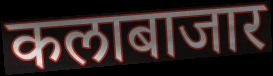
कलाबाजार